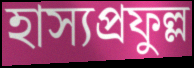
হাস্যপ্রফুল্ল